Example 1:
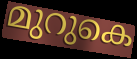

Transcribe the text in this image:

മുറുകെ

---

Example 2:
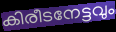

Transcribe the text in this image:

കിരീടനേട്ടവും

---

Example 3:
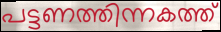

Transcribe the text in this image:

പട്ടണത്തിന്നകത്ത്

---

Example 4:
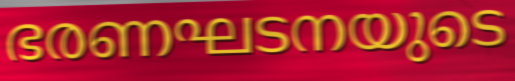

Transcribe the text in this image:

ഭരണഘടനയുടെ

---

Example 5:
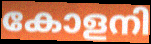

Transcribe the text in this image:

കോളനി